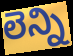
లెన్ని